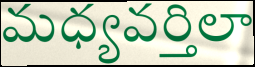
మధ్యవర్తిలా